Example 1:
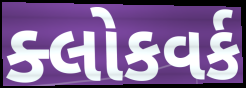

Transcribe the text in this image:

ક્લોકવર્ક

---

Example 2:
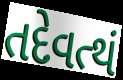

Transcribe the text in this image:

તદેવત્થં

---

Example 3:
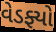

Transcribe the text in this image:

વેડફ્યો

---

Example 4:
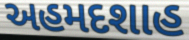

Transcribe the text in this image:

અહમદશાહ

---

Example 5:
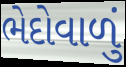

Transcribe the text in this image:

ભેદોવાળું